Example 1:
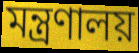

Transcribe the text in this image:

মন্ত্রণালয়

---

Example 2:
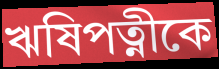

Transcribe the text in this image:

ঋষিপত্নীকে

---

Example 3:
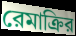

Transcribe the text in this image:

রেমাক্রির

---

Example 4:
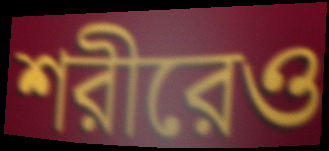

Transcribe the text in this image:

শরীরেও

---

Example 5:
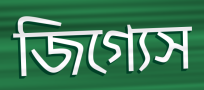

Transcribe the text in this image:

জিগ্যেস